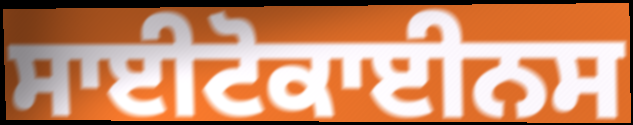
ਸਾਈਟੋਕਾਈਨਸ